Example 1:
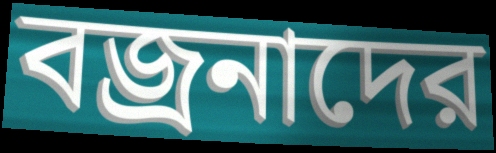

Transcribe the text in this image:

বজ্রনাদের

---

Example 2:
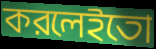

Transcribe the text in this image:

করলেইতো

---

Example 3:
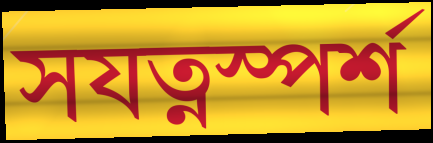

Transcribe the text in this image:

সযত্নস্পর্শ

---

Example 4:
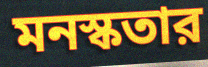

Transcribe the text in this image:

মনস্কতার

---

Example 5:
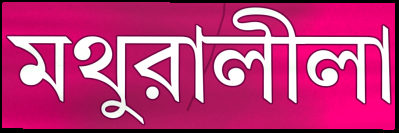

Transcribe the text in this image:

মথুরালীলা